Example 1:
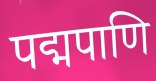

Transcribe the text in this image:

पद्मपाणि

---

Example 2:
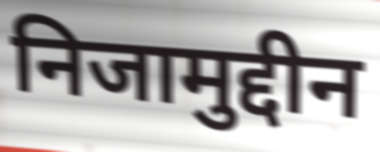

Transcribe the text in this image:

निजामुद्दीन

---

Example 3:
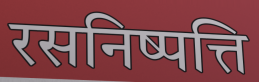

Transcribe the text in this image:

रसनिष्पत्ति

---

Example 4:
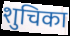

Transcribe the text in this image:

शुचिका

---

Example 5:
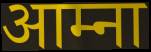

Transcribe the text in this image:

आम्ना